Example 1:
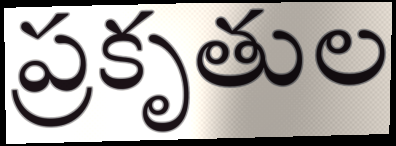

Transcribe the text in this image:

ప్రకృతుల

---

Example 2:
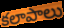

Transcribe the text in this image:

కలాపాలు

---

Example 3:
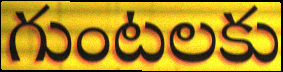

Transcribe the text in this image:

గుంటలకు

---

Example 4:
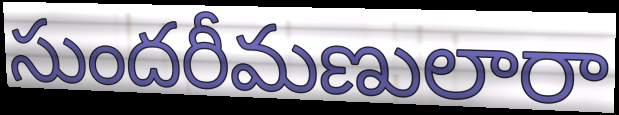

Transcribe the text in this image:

సుందరీమణులారా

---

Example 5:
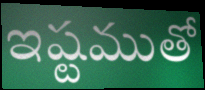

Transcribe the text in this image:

ఇష్టముతో